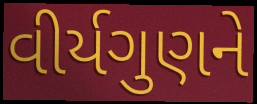
વીર્યગુણને